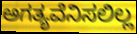
ಅಗತ್ಯವೆನಿಸಲಿಲ್ಲ